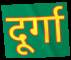
दूर्गा